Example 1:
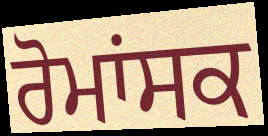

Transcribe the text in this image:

ਰੋਮਾਂਸਕ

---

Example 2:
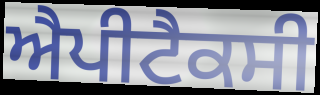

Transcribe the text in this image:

ਐਪੀਟੈਕਸੀ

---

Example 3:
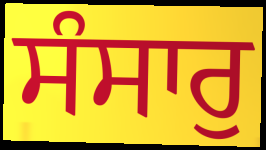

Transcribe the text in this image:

ਸੰਸਾਰੁ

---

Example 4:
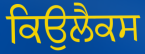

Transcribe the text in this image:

ਕਿਉਲੈਕਸ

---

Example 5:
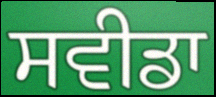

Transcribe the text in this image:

ਸਵੀਡਾ